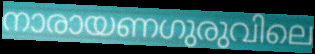
നാരായണഗുരുവിലെ